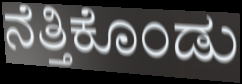
ನೆತ್ತಿಕೊಂಡು